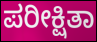
ಪರೀಕ್ಷಿತಾ